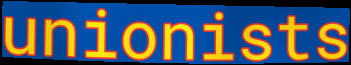
unionists